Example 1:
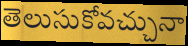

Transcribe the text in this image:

తెలుసుకోవచ్చునా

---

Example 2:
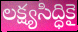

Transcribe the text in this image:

లక్ష్యసిద్ధికై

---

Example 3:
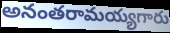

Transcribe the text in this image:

అనంతరామయ్యగారు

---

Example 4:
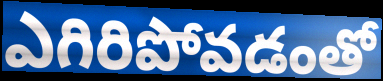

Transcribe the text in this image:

ఎగిరిపోవడంతో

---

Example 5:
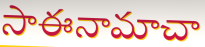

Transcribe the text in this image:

సాఈనామాచా